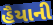
હૈયાની